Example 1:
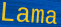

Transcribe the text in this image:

Lama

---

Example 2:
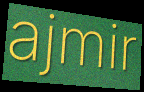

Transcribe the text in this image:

ajmir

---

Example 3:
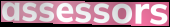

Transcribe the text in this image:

assessors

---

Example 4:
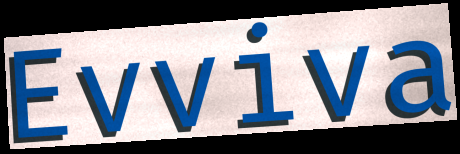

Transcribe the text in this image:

Evviva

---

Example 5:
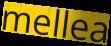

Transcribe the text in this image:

mellea